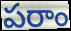
పరాం